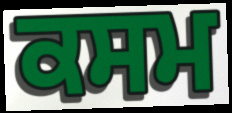
ਕਸਮ